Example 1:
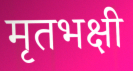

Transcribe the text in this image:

मृतभक्षी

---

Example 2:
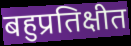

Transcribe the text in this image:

बहुप्रतिक्षीत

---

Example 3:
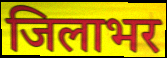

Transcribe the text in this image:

जिलाभर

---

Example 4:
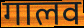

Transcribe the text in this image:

गालव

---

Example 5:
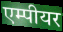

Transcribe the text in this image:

एम्पीयर